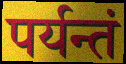
पर्यन्तं